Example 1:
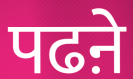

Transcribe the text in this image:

पढऩे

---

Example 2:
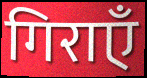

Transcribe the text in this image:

गिराएँ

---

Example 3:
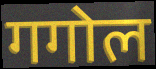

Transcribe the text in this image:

गगोल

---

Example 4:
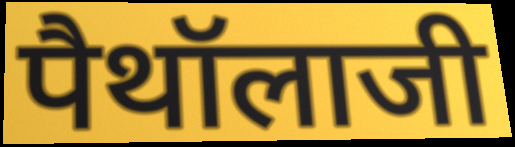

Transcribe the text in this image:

पैथॉलाजी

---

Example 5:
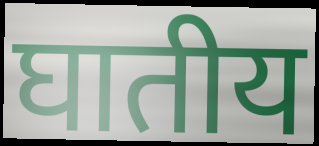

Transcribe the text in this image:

घातीय